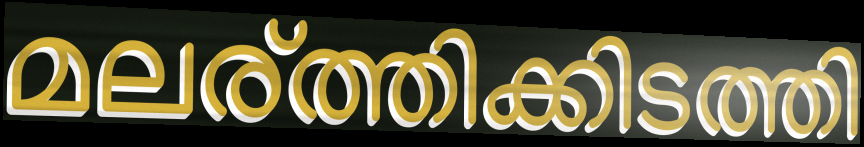
മലര്ത്തിക്കിടത്തി